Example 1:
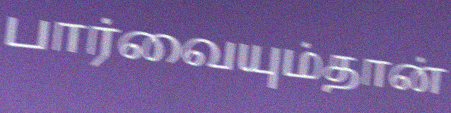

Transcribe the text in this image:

பார்வையும்தான்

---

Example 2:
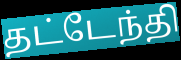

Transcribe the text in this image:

தட்டேந்தி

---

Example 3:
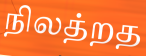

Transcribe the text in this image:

நிலத்றத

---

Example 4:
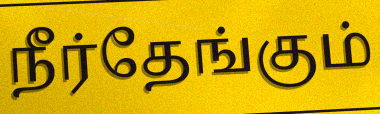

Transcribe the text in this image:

நீர்தேங்கும்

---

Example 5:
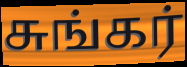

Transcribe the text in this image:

சுங்கர்